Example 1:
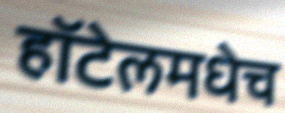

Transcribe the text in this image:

हॉटेलमधेच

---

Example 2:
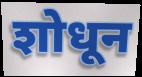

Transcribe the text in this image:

शोधून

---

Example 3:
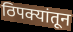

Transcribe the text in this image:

ठिपक्यांतून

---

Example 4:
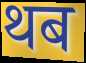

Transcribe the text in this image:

थब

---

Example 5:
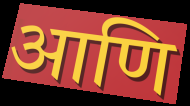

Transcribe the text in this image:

आणि